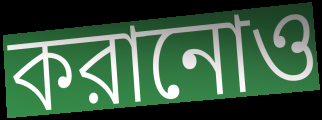
করানোও